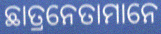
ଛାତ୍ରନେତାମାନେ